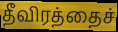
தீவிரத்தைச்